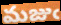
మజుఁ